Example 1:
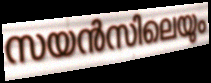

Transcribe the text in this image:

സയൻസിലെയും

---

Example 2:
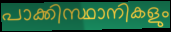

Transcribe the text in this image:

പാക്കിസ്ഥാനികളും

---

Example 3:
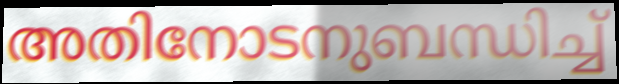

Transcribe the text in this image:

അതിനോടനുബന്ധിച്ച്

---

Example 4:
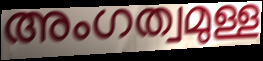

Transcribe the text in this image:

അംഗത്വമുള്ള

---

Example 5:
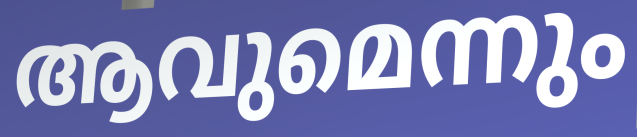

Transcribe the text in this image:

ആവുമെന്നും